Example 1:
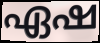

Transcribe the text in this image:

ഏഷ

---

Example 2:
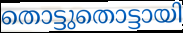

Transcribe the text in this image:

തൊട്ടുതൊട്ടായി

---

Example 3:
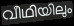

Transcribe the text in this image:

വീഥിയിലും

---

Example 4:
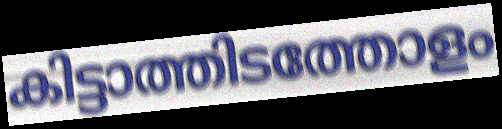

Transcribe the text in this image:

കിട്ടാത്തിടത്തോളം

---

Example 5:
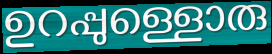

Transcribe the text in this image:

ഉറപ്പുള്ളൊരു